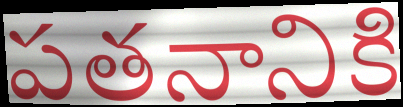
పతనానికి